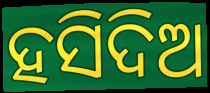
ହସିଦିଅ